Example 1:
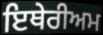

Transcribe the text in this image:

ਇਥੇਰੀਅਮ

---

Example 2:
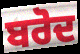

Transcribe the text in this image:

ਬਰੋਦ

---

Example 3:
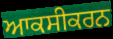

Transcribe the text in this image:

ਆਕਸੀਕਰਨ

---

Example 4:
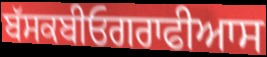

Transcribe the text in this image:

ਬੱਸਕਬੀਓਗਰਾਫੀਆਸ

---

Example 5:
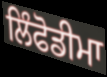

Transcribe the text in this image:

ਲਿੰਫੋਡੀਮਾ